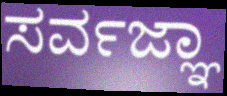
ಸರ್ವಜ್ಞಾ